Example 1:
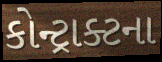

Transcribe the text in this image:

કોન્ટ્રાક્ટના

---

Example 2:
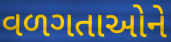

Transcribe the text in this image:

વળગતાઓને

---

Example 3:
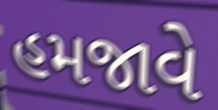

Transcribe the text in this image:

હમજાવે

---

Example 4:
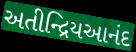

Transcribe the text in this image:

અતીન્દ્રિયઆનંદ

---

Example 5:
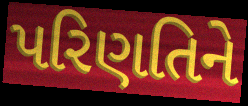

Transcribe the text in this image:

પરિણતિને